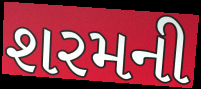
શરમની